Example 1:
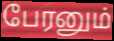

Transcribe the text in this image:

பேரனும்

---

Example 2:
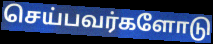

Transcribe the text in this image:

செய்பவர்களோடு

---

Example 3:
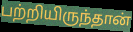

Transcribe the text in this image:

பற்றியிருந்தான்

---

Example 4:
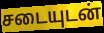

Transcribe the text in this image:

சடையுடன்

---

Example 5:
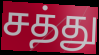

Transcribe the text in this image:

சத்து